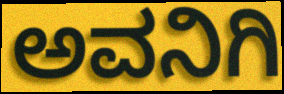
ಅವನಿಗಿ